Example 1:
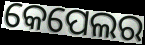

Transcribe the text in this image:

କେପେଲର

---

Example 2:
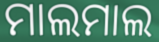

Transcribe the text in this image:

ମାଲମାଲ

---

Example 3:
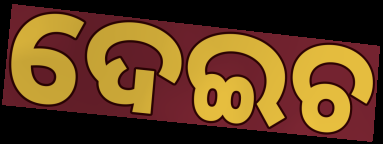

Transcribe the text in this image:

ଦେଇଚ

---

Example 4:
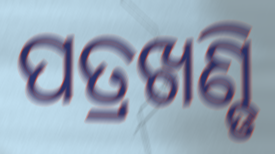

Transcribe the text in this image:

ପତ୍ରଖଣ୍ଡି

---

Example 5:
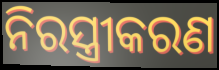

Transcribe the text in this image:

ନିରସ୍ତ୍ରୀକରଣ